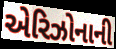
એરિઝોનાની